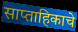
साप्ताहिकाचे